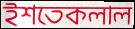
ইশতেকলাল